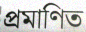
প্ৰমাণিত